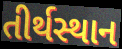
તીર્થસ્થાન